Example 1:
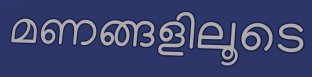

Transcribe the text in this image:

മണങ്ങളിലൂടെ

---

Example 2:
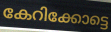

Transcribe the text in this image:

കേറിക്കോട്ടെ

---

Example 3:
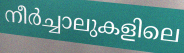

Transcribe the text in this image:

നീർച്ചാലുകളിലെ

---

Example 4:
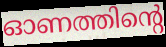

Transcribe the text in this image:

ഓണത്തിന്റെ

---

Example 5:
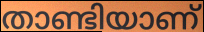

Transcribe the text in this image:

താണ്ടിയാണ്